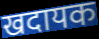
खदायक